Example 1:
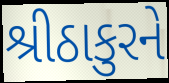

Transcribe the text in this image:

શ્રીઠાકુરને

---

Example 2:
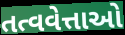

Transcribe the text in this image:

તત્વવેત્તાઓ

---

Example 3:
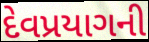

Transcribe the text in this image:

દેવપ્રયાગની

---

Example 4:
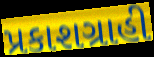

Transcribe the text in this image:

પ્રકાશગ્રાહી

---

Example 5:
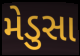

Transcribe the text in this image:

મેડુસા